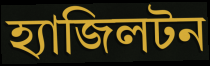
হ্যাজিলটন